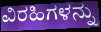
ವಿರಹಿಗಳನ್ನು